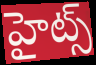
హైట్స్